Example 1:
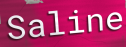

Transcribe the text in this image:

Saline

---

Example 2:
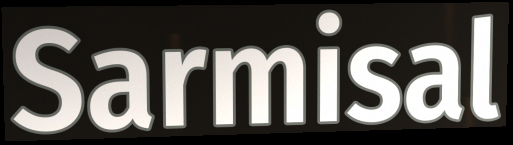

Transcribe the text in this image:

Sarmisal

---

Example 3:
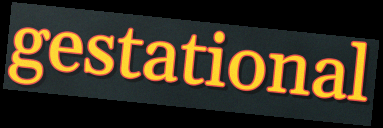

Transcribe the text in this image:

gestational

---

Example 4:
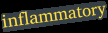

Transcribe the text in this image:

inflammatory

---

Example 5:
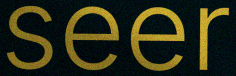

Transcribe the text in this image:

seer